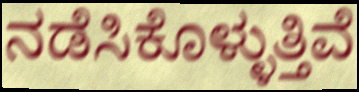
ನಡೆಸಿಕೊಳ್ಳುತ್ತಿವೆ